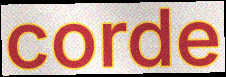
corde